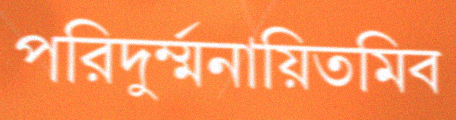
পরিদুর্ম্মনায়িতমিব